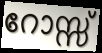
റോസ്സ്